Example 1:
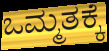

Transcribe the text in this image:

ಒಮ್ಮತಕ್ಕೆ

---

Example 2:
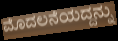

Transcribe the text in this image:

ಮೊದಲನೆಯದ್ದನ್ನು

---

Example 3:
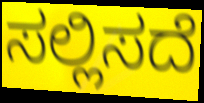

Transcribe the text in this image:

ಸಲ್ಲಿಸದೆ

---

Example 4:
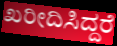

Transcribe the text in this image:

ಖರೀದಿಸಿದ್ದರೆ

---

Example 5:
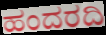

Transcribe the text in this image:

ಹಂದರದಿ